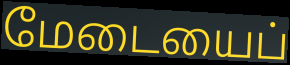
மேடையைப்